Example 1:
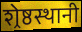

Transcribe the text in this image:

श्रेष्ठस्थानी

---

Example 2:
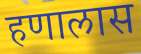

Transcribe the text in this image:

हणालास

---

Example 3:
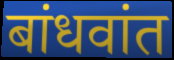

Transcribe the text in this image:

बांधवांत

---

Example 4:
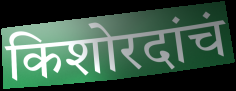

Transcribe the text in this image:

किशोरदांचं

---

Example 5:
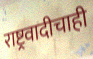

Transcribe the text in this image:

राष्ट्रवादीचाही